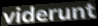
viderunt